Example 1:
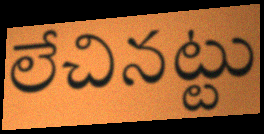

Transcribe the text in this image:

లేచినట్టు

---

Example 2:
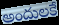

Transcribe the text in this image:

అందులకే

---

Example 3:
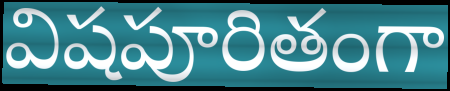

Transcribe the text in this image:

విషపూరితంగా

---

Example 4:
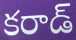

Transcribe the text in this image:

కరాడ్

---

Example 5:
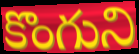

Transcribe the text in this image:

కొంగుని